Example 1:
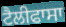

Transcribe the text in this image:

ਟੈਲੀਫਾਸਾ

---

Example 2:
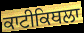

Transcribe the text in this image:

ਕਾਟੀਕਿਥਲਾ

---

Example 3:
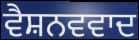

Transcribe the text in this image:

ਵੈਸ਼ਨਵਵਾਦ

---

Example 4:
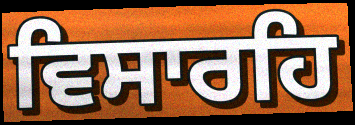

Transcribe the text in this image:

ਵਿਸਾਰਹਿ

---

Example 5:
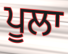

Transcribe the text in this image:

ਪੂਲਾ